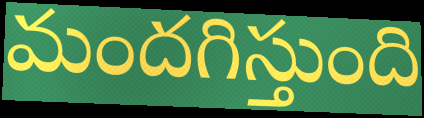
మందగిస్తుంది